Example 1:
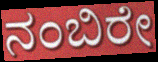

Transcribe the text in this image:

ನಂಬಿರೇ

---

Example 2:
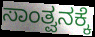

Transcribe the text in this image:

ಸಾಂತ್ವನಕ್ಕೆ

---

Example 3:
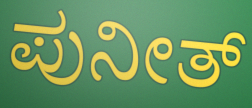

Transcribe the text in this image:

ಪುನೀತ್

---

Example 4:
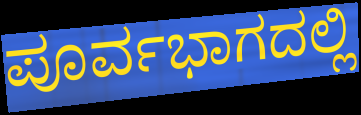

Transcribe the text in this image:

ಪೂರ್ವಭಾಗದಲ್ಲಿ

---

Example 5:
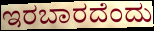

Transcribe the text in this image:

ಇರಬಾರದೆಂದು